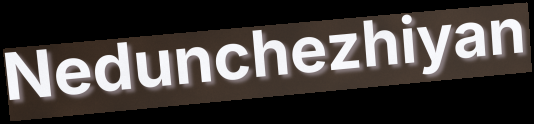
Nedunchezhiyan